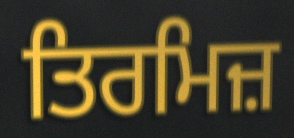
ਤਿਰਮਿਜ਼